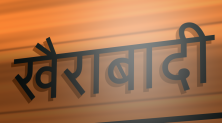
खैराबादी